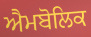
ਐਮਬੋਲਿਕ